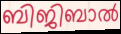
ബിജിബാൽ